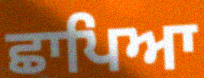
ਛਾਪਿਆ